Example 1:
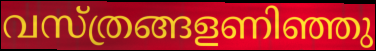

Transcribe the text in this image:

വസ്ത്രങ്ങളണിഞ്ഞു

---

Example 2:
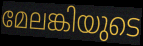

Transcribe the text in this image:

മേലങ്കിയുടെ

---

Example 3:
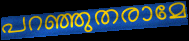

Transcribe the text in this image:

പറഞ്ഞുതരാമേ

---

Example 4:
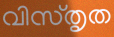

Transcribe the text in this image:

വിസ്തൃത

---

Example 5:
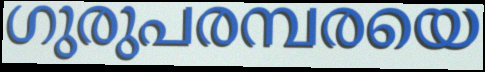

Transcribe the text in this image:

ഗുരുപരമ്പരയെ